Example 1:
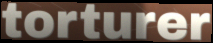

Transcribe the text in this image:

torturer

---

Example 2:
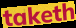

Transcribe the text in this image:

taketh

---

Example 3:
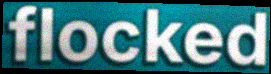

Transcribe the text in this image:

flocked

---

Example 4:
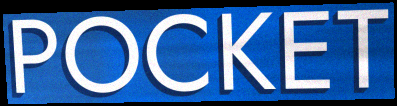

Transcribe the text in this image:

POCKET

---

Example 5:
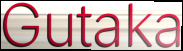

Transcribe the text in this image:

Gutaka